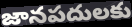
జానపదులకు